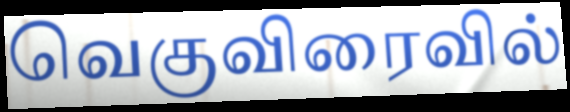
வெகுவிரைவில்